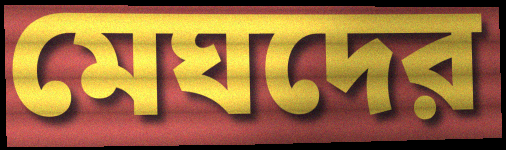
মেঘদের